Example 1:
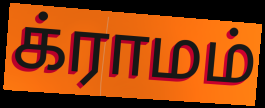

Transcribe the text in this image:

க்ராமம்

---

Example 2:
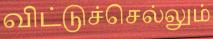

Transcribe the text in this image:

விட்டுச்செல்லும்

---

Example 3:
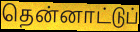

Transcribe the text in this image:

தென்னாட்டுப்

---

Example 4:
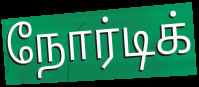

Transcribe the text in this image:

நோர்டிக்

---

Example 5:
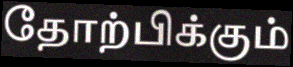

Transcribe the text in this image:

தோற்பிக்கும்